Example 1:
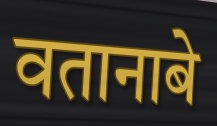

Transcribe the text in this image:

वतानाबे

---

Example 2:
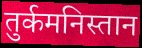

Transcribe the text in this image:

तुर्कमनिस्तान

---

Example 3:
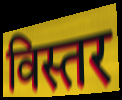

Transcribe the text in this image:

विस्तर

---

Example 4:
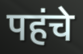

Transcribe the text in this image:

पहंचे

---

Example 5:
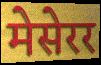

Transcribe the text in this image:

मेसेरर